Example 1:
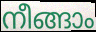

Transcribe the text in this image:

നീങ്ങാം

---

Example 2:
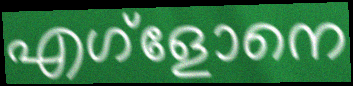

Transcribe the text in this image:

എഗ്ളോനെ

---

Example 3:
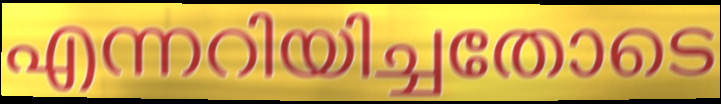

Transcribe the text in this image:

എന്നറിയിച്ചതോടെ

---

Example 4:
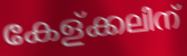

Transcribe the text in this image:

കേള്ക്കലിന്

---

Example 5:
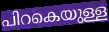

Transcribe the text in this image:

പിറകെയുള്ള